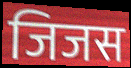
जिजस